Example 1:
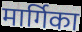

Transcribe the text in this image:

मार्गिका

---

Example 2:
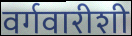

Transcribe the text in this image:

वर्गवारीशी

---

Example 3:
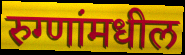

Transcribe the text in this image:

रुग्णांमधील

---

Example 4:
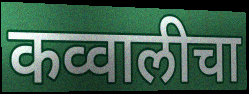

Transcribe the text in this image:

कव्वालीचा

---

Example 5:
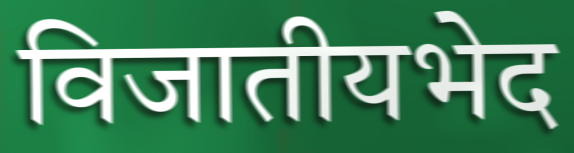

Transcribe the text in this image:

विजातीयभेद